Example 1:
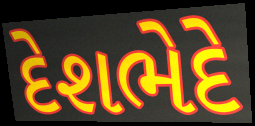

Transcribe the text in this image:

દેશભેદે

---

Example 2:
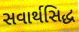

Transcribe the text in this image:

સવાર્થસિદ્ધ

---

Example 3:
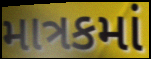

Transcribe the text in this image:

માત્રકમાં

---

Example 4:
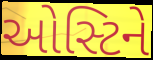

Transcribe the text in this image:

ઓસ્ટિને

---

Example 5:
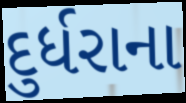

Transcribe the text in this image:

દુર્ધરાના